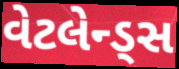
વેટલેન્ડ્સ